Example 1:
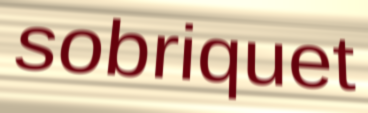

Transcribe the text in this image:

sobriquet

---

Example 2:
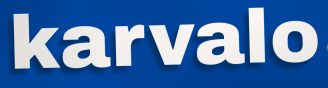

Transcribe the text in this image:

karvalo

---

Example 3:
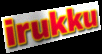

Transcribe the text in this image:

irukku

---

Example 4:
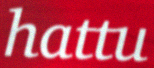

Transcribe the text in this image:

hattu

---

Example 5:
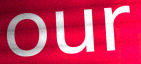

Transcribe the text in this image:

our